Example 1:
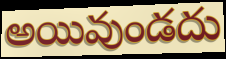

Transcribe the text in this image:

అయివుండదు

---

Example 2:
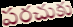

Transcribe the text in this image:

పరచుకు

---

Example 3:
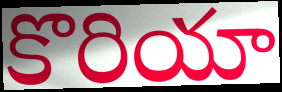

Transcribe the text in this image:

కొరియా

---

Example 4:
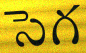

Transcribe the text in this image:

సెగ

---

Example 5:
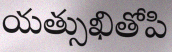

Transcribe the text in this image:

యత్సుఖితోపి